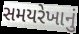
સમયરેખાનું